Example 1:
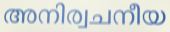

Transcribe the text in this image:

അനിര്വചനീയ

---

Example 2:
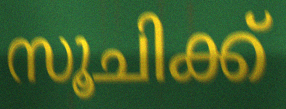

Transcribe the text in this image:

സൂചിക്ക്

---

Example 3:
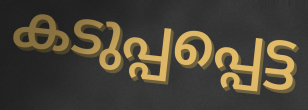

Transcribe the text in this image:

കടുപ്പപ്പെട്ട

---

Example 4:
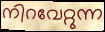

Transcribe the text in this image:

നിറവേറ്റുന്ന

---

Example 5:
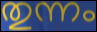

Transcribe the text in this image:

തുന്നം